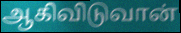
ஆகிவிடுவான்